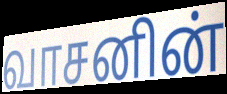
வாசனின்